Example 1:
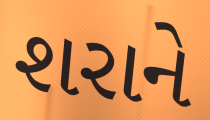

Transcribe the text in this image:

શરાને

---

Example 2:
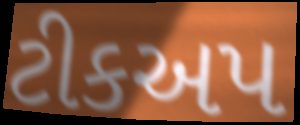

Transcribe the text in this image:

ટીકઅપ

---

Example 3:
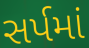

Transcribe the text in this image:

સર્પમાં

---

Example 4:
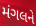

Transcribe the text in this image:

મંગલને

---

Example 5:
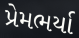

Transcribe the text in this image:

પ્રેમભર્યા